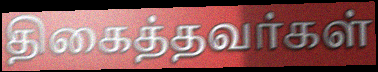
திகைத்தவர்கள்